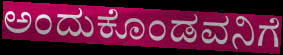
ಅಂದುಕೊಂಡವನಿಗೆ